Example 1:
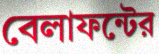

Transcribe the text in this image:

বেলাফন্টের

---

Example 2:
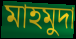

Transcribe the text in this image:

মাহমুদা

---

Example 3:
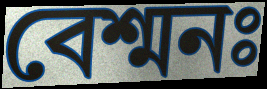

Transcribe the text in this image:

বেশ্মনঃ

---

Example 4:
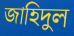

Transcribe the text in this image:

জাহিদুল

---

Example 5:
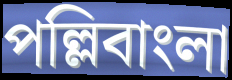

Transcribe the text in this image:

পল্লিবাংলা